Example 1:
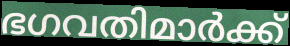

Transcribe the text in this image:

ഭഗവതിമാർക്ക്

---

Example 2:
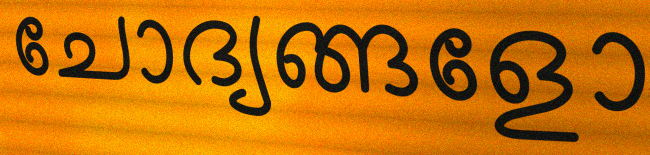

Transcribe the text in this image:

ചോദ്യങ്ങളോ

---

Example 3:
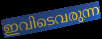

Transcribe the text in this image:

ഇവിടെവരുന്ന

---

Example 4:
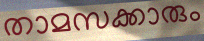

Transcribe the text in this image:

താമസക്കാരും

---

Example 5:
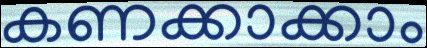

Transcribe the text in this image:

കണക്കാക്കാം